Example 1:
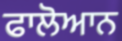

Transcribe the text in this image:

ਫਾਲੋਆਨ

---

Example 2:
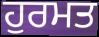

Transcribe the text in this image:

ਹੁਰਮਤ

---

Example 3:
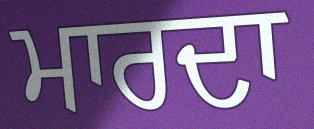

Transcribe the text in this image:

ਮਾਰਦਾ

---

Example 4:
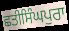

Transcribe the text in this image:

ਛਤੀਸਿੰਘਪੁਰਾ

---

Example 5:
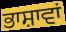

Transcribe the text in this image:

ਭਾਸ਼ਾਵਾਂ